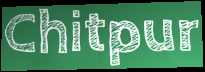
Chitpur